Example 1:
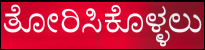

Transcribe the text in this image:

ತೋರಿಸಿಕೊಳ್ಳಲು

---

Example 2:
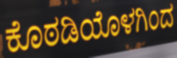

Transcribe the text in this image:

ಕೊಠಡಿಯೊಳಗಿಂದ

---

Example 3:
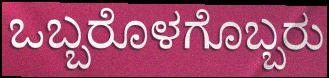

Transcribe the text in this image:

ಒಬ್ಬರೊಳಗೊಬ್ಬರು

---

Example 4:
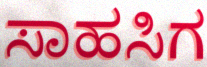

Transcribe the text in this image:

ಸಾಹಸಿಗ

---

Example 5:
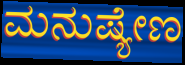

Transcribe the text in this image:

ಮನುಷ್ಯೇಣ